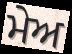
ਮੇਅ